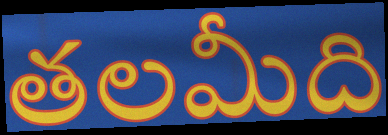
తలమీది